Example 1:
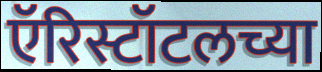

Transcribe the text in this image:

ऍरिस्टॉटलच्या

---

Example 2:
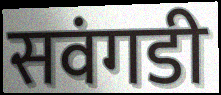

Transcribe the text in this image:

सवंगडी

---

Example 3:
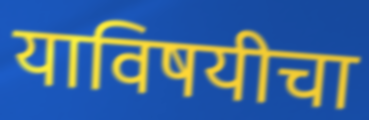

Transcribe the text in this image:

याविषयीचा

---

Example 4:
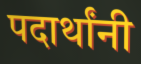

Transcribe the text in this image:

पदार्थांनी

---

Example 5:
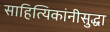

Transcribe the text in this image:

साहित्यिकांनीसुद्धा